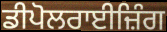
ਡੀਪੋਲਰਾਈਜ਼ਿੰਗ